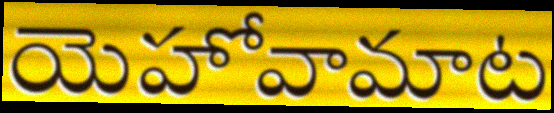
యెహోవామాట